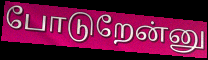
போடுறேன்னு